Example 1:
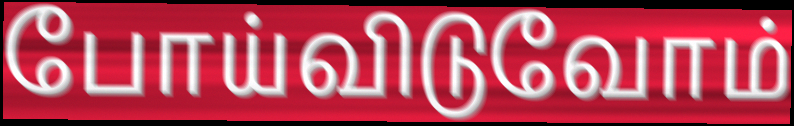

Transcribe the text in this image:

போய்விடுவோம்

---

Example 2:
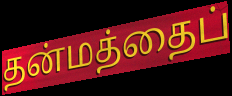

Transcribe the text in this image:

தன்மத்தைப்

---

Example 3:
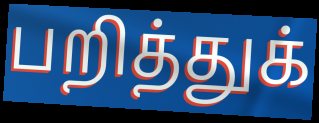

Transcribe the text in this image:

பறித்துக்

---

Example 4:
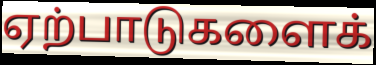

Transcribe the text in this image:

ஏற்பாடுகளைக்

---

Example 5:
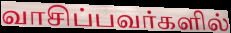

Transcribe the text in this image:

வாசிப்பவர்களில்